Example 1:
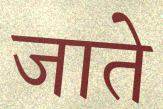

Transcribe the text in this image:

जाते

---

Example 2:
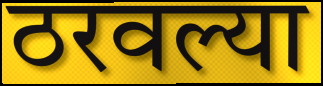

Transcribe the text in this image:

ठरवल्या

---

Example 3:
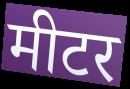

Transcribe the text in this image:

मीटर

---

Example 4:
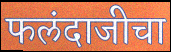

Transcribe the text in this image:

फलंदाजीचा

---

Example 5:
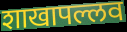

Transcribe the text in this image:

शाखापल्लव